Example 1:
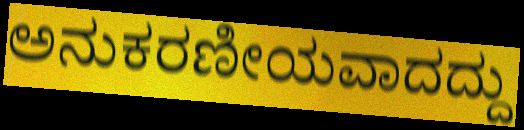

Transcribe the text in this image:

ಅನುಕರಣೀಯವಾದದ್ದು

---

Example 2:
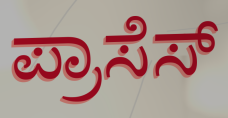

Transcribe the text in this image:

ಪ್ರಾಸೆಸ್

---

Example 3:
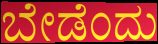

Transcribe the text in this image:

ಬೇಡೆಂದು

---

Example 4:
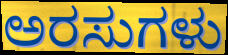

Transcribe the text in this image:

ಅರಸುಗಳು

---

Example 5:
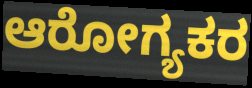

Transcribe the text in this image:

ಆರೋಗ್ಯಕರ